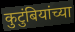
कुटुंबियांच्या